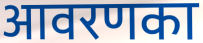
आवरणका